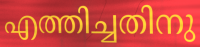
എത്തിച്ചതിനു